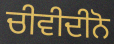
ਚੀਵੀਦੀਨੋ